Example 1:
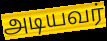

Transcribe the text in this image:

அடியவர்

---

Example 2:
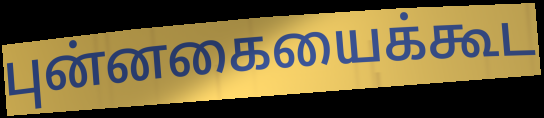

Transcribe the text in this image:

புன்னகையைக்கூட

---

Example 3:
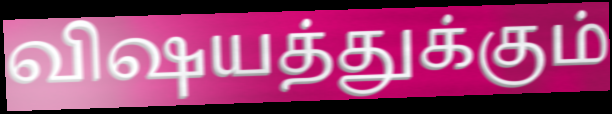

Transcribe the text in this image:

விஷயத்துக்கும்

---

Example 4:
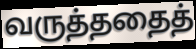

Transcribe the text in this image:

வருத்ததைத்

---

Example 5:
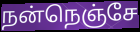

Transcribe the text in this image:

நன்நெஞ்சே